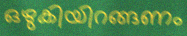
ഒഴുകിയിറങ്ങണം